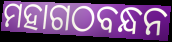
ମହାଗଠବନ୍ଧନ